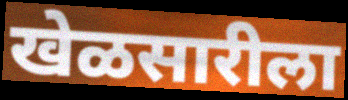
खेळसारीला